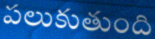
పలుకుతుంది